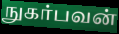
நுகர்பவன்